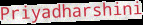
Priyadharshini